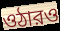
ওঠারও